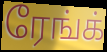
ரேங்க்